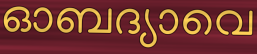
ഓബദ്യാവെ